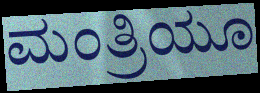
ಮಂತ್ರಿಯೂ